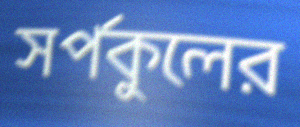
সর্পকুলের